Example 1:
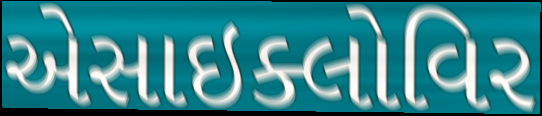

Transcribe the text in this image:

એસાઇક્લોવિર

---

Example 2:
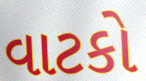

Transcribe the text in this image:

વાટકો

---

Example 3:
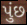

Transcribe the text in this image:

પુંછ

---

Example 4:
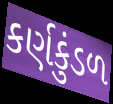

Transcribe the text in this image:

કર્ણકુંડળ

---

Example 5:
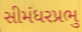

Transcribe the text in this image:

સીમંધરપ્રભુ